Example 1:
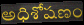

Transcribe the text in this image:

అధిశోషణం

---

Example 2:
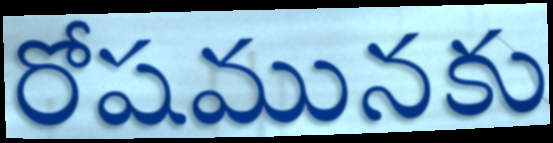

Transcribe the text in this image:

రోషమునకు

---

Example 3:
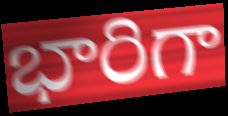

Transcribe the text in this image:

భారిగా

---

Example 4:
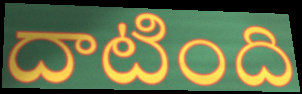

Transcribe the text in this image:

దాటింది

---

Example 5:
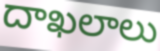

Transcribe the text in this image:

దాఖలాలు